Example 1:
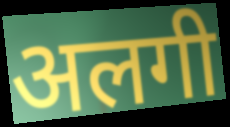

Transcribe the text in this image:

अलगी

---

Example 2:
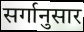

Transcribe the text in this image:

सर्गानुसार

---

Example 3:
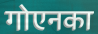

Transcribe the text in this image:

गोएनका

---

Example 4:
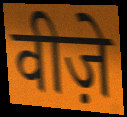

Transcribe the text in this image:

वीज़े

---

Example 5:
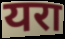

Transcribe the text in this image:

यरा